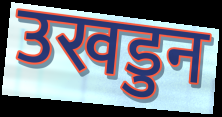
उखडुन